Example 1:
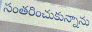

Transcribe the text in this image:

సంతరించుకున్నాను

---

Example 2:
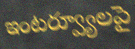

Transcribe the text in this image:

ఇంటర్వ్యూలపై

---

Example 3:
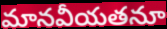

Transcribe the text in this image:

మానవీయతనూ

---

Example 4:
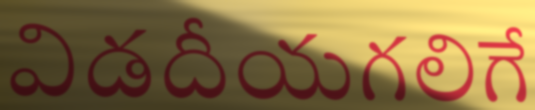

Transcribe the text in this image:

విడదీయగలిగే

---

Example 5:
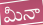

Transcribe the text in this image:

మీనా